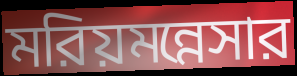
মরিয়মন্নেসার